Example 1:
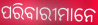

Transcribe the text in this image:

ପରିବାରୀମାନେ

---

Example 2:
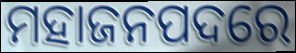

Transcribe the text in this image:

ମହାଜନପଦରେ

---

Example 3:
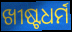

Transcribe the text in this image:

ଖୀଷ୍ଟଧର୍ମ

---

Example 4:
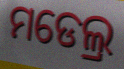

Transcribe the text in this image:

ମଡେଲ୍ର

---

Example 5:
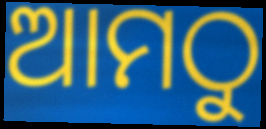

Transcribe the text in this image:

ଆମଠୁ